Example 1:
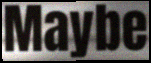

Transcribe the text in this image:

Maybe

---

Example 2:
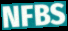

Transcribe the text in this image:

NFBS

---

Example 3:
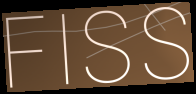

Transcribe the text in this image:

FISS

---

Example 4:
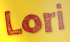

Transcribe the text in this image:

Lori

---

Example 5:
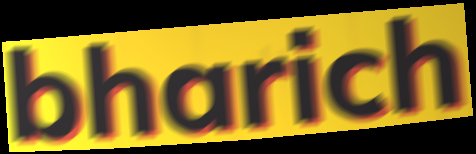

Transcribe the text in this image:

bharich